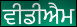
ਵੀਡੀਐਮ